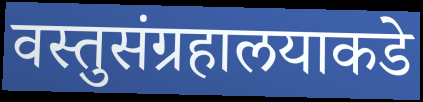
वस्तुसंग्रहालयाकडे